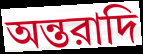
অন্তরাদি